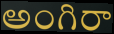
అంగిరా